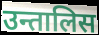
उन्तालिस